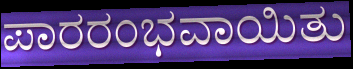
ಪಾರರಂಭವಾಯಿತು